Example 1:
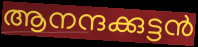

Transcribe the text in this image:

ആനന്ദക്കുട്ടൻ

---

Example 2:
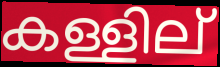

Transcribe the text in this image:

കള്ളില്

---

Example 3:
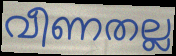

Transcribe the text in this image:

വീണതല്ല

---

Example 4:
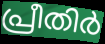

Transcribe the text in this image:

പ്രീതിർ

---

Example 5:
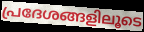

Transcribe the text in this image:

പ്രദേശങ്ങളിലൂടെ